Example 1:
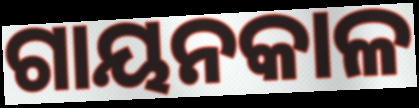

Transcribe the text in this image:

ଗାୟନକାଳ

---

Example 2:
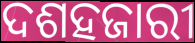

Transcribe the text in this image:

ଦଶହଜାରୀ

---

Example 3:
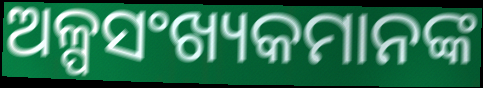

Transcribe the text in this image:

ଅଳ୍ପସଂଖ୍ୟକମାନଙ୍କ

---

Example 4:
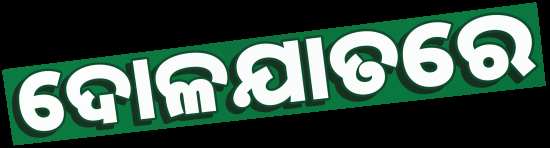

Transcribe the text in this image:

ଦୋଳଯାତରେ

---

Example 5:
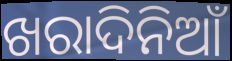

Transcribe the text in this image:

ଖରାଦିନିଆଁ